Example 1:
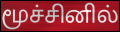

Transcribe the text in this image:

மூச்சினில்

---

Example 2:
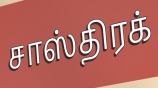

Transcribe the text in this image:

சாஸ்திரக்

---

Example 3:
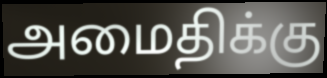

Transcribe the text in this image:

அமைதிக்கு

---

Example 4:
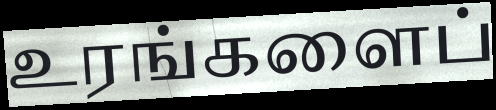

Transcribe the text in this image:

உரங்களைப்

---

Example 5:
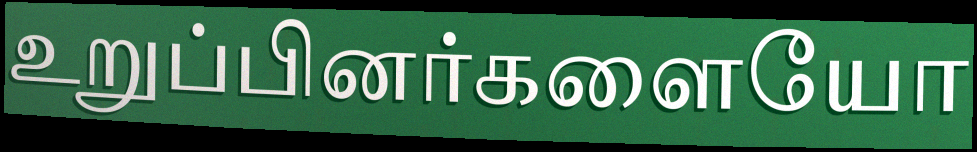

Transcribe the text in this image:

உறுப்பினர்களையோ